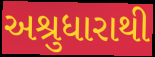
અશ્રુધારાથી